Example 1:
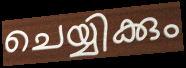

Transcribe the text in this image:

ചെയ്യിക്കും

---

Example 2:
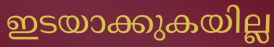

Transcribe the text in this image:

ഇടയാക്കുകയില്ല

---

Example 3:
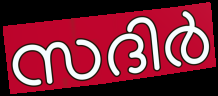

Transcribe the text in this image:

സദിർ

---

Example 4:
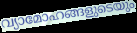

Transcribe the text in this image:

വ്യാമോഹങ്ങളുടെയും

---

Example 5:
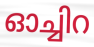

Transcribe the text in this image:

ഓച്ചിറ